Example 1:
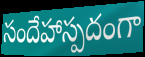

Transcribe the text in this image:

సందేహాస్పదంగా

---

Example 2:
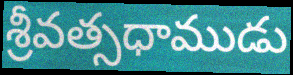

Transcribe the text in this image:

శ్రీవత్సధాముడు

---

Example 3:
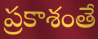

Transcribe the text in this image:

ప్రకాశంతే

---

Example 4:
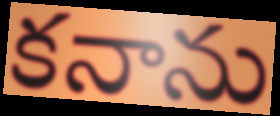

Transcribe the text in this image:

కనాను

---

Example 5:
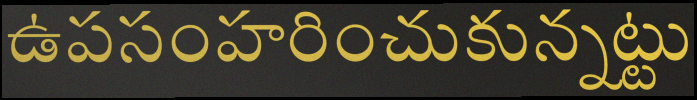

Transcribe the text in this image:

ఉపసంహరించుకున్నట్టు